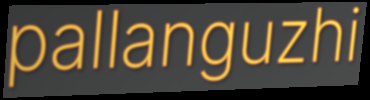
pallanguzhi